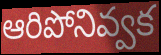
ఆరిపోనివ్వక